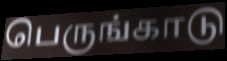
பெருங்காடு